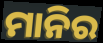
ମାନିର